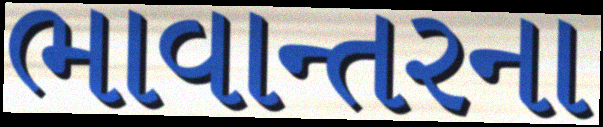
ભાવાન્તરના